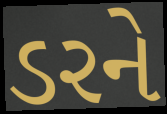
ડરને